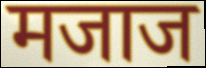
मजाज